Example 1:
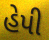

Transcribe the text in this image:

હેપી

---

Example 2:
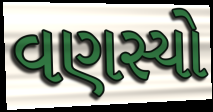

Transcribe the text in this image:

વણસ્યો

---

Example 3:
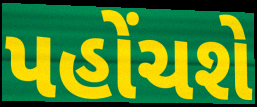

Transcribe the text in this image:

પહોંચશે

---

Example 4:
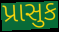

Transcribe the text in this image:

પ્રાસુક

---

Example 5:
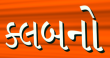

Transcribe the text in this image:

ક્લબનો